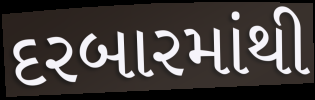
દરબારમાંથી